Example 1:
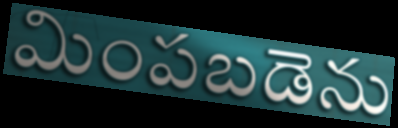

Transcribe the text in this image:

మింపబడెను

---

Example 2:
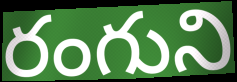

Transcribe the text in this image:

రంగుని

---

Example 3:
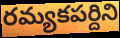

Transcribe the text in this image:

రమ్యకపర్దిని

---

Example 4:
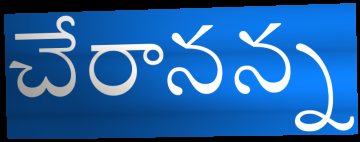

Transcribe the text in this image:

చేరానన్న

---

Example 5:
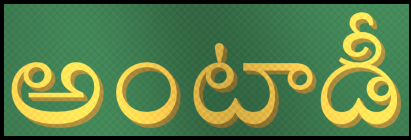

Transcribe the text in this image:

అంటాడీ